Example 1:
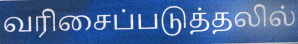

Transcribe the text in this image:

வரிசைப்படுத்தலில்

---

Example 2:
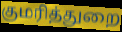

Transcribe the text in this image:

குமரித்துறை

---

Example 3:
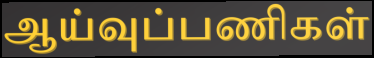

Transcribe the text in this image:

ஆய்வுப்பணிகள்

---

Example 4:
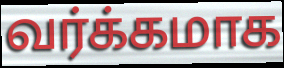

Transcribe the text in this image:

வர்க்கமாக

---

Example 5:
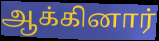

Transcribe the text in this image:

ஆக்கினார்